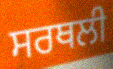
ਸਰਥਲੀ